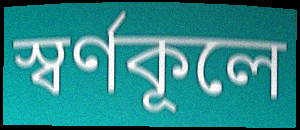
স্বর্ণকূলে